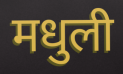
मधुली